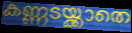
കണ്ണടയ്ക്കാതെ